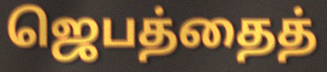
ஜெபத்தைத்